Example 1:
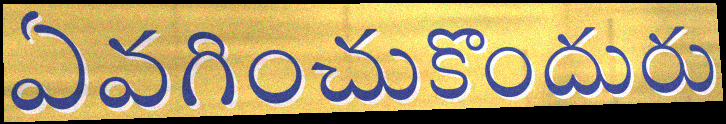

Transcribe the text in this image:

ఏవగించుకొందురు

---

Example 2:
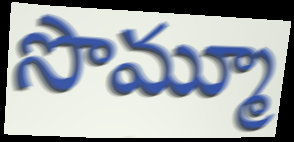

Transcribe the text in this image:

సొమ్మూ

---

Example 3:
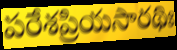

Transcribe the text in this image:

పరేశప్రియసారథిః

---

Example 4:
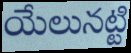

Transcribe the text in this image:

యేలునట్టి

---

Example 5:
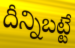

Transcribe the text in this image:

దీన్నిబట్టే